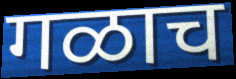
गळाच